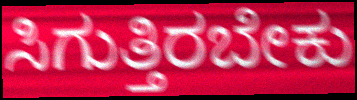
ಸಿಗುತ್ತಿರಬೇಕು